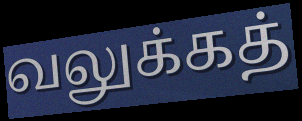
வலுக்கத்